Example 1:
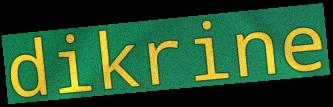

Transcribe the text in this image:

dikrine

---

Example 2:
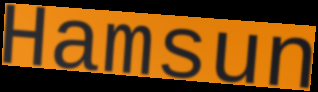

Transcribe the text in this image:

Hamsun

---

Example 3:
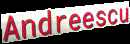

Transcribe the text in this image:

Andreescu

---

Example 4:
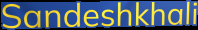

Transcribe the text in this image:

Sandeshkhali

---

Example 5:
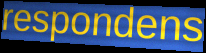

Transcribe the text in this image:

respondens